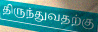
திருந்துவதற்கு